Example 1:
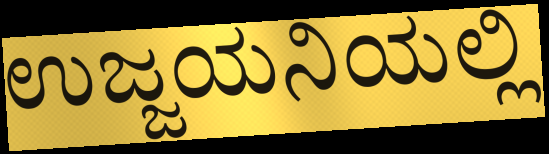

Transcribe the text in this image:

ಉಜ್ಜಯನಿಯಲ್ಲಿ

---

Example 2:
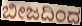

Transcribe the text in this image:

ಬೀಜದಿಂದ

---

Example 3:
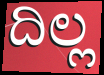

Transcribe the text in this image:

ದಿಲ್ಲ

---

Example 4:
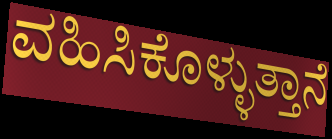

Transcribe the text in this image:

ವಹಿಸಿಕೊಳ್ಳುತ್ತಾನೆ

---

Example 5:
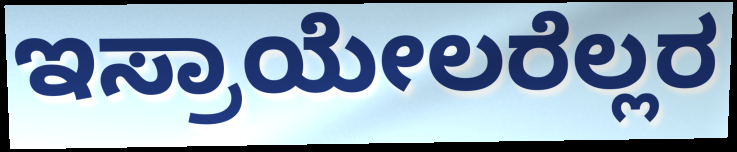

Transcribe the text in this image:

ಇಸ್ರಾಯೇಲರೆಲ್ಲರ